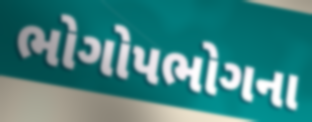
ભોગોપભોગના